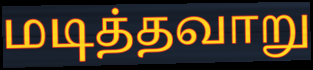
மடித்தவாறு